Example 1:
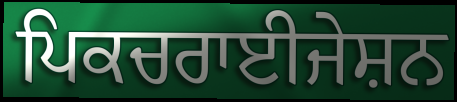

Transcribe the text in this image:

ਪਿਕਚਰਾਈਜੇਸ਼ਨ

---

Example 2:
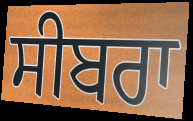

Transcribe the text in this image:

ਸੀਬਰਾ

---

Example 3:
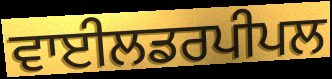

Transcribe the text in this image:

ਵਾਈਲਡਰਪੀਪਲ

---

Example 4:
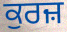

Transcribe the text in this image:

ਕੁਰਜ਼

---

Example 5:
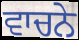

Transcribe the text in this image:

ਵਾਚਨੇ